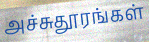
அச்சுதூரங்கள்